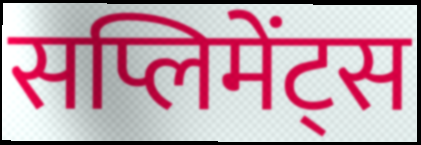
सप्लिमेंट्स